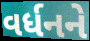
વર્ધનને